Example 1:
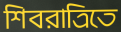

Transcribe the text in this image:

শিবরাত্রিতে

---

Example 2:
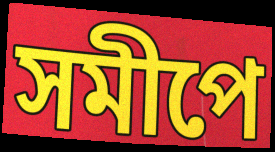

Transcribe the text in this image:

সমীপে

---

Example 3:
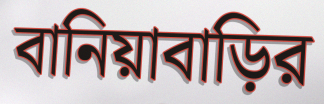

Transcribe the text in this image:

বানিয়াবাড়ির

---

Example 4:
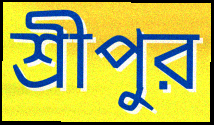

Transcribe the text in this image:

শ্রীপুর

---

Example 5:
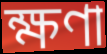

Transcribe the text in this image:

ক্ষণা